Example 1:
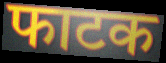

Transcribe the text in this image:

फाटक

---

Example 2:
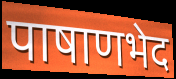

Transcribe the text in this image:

पाषाणभेद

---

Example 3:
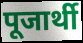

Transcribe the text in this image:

पूजार्थी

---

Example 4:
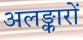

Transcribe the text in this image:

अलङ्कारों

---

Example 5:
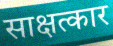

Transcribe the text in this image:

साक्षत्कार